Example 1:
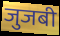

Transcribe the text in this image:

जुजबी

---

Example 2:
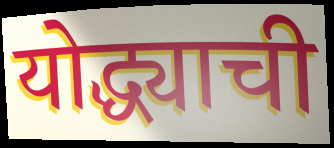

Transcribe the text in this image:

योद्ध्याची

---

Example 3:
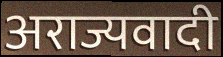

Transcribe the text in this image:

अराज्यवादी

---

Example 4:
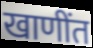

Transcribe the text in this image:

खाणींत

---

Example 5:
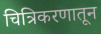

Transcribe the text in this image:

चित्रिकरणातून